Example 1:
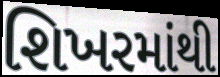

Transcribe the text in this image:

શિખરમાંથી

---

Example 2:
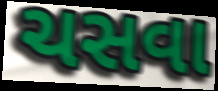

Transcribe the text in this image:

ચસવા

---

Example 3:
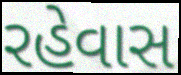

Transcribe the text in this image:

રહેવાસ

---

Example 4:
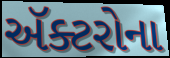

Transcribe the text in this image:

ઍક્ટરોના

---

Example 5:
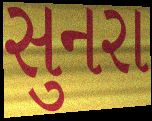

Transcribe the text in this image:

સુનરા